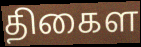
திகைள